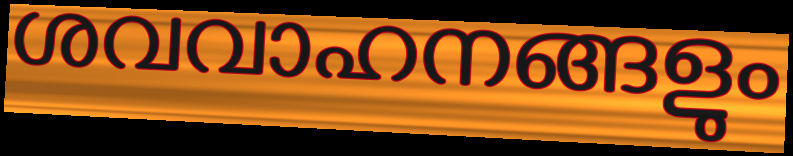
ശവവാഹനങ്ങളും